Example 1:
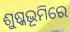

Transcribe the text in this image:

ଶୁଷ୍କଭୂମିରେ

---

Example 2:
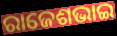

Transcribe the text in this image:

ରାଜେଶଭାଇ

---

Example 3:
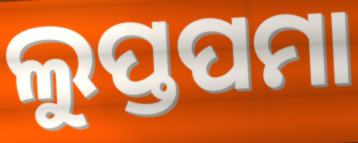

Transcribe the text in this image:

ଲୁପ୍ତପମା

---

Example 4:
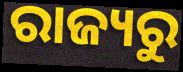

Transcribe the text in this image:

ରାଜ୍ୟରୁ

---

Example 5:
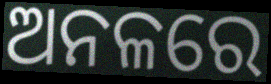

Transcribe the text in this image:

ଅନଳରେ